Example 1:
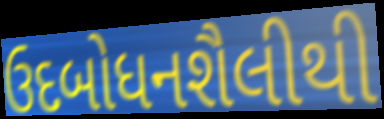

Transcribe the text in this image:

ઉદબોધનશૈલીથી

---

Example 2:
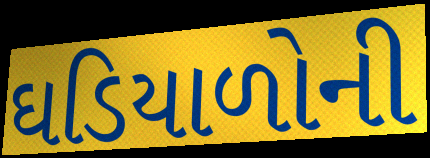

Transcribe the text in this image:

ઘડિયાળોની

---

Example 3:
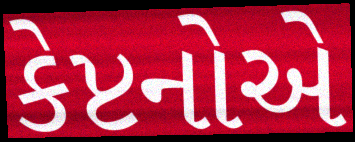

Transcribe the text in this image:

કેપ્ટનોએ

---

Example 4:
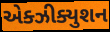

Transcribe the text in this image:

એક્ઝીક્યુશન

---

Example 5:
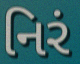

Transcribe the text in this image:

નિરં